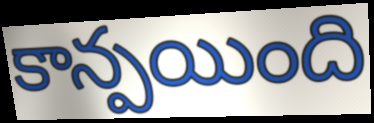
కాన్పయింది